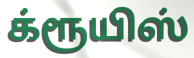
க்ரூயிஸ்